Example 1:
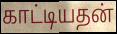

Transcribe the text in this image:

காட்டியதன்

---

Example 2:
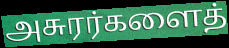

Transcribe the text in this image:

அசுரர்களைத்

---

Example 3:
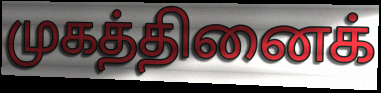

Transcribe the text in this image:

முகத்தினைக்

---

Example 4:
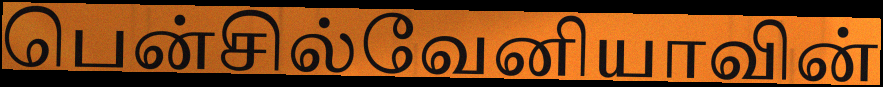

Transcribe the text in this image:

பென்சில்வேனியாவின்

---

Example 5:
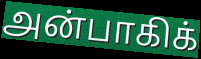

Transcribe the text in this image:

அன்பாகிக்